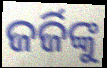
ଜର୍ଜିଙ୍କୁ